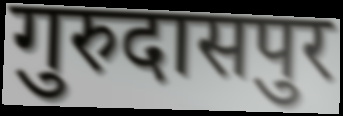
गुरुदासपुर